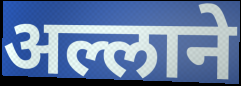
अल्लाने